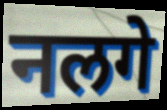
नलगे